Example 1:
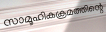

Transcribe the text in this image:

സാമൂഹികക്രമത്തിന്റെ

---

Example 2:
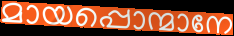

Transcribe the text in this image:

മായപ്പൊന്മാനേ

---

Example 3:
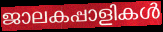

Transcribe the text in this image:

ജാലകപ്പാളികൾ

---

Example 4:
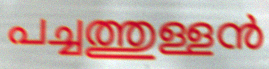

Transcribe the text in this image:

പച്ചത്തുള്ളൻ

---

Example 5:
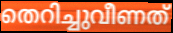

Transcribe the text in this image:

തെറിച്ചുവീണത്